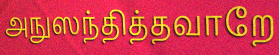
அநுஸந்தித்தவாறே